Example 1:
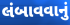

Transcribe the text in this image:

લંબાવવાનું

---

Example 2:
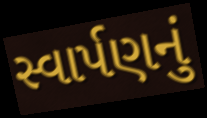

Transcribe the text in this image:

સ્વાર્પણનું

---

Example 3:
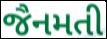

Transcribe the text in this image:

જૈનમતી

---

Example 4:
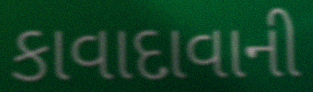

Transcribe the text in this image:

કાવાદાવાની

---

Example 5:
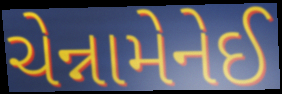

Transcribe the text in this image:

ચેન્નામેનેઈ